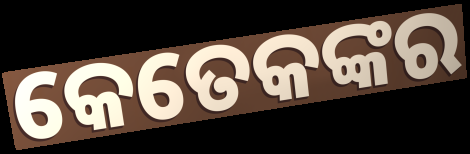
କେତେକଙ୍କର